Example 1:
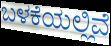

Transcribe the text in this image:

ಬಳಕೆಯಲ್ಲಿವೆ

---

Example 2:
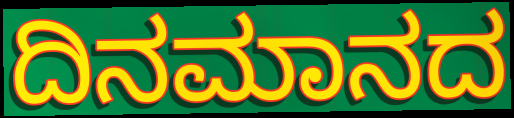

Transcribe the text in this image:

ದಿನಮಾನದ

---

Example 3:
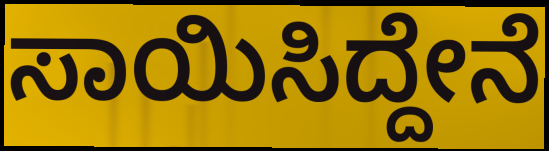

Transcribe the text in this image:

ಸಾಯಿಸಿದ್ದೇನೆ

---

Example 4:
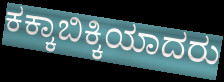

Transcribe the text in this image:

ಕಕ್ಕಾಬಿಕ್ಕಿಯಾದರು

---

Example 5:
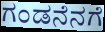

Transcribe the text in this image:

ಗಂಡನೆನಗೆ